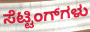
ಸೆಟ್ಟಿಂಗ್‌ಗಳು